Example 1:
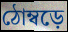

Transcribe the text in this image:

ঠোম্বড়ে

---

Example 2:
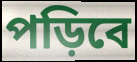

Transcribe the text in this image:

পড়িবে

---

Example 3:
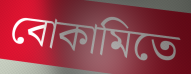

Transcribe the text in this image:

বোকামিতে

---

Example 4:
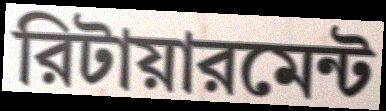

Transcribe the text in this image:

রিটায়ারমেন্ট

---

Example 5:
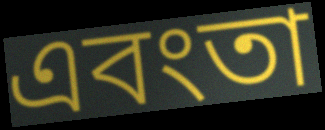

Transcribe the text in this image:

এবংতা